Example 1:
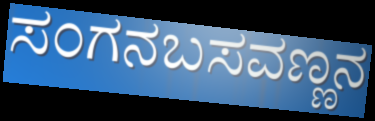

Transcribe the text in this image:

ಸಂಗನಬಸವಣ್ಣನ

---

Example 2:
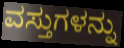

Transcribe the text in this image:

ವಸ್ತುಗಳನ್ನು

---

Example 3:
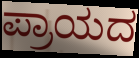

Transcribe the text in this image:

ಪ್ರಾಯದ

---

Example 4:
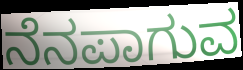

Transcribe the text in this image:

ನೆನಪಾಗುವ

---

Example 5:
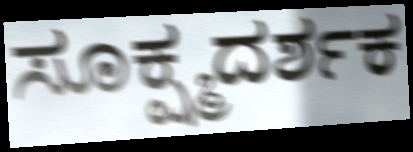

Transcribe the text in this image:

ಸೂಕ್ಷ್ಮದರ್ಶಕ